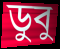
ডুবু